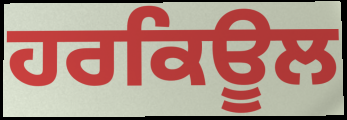
ਹਰਕਿਊਲ